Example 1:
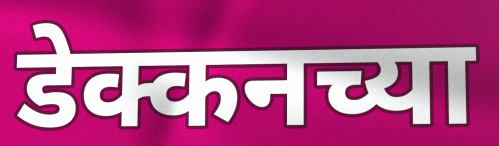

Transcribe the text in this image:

डेक्कनच्या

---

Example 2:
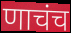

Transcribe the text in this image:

णाचंच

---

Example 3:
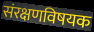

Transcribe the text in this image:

संरक्षणविषयक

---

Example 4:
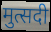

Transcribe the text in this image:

मुत्सदी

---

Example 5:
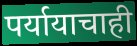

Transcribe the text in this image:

पर्यायाचाही